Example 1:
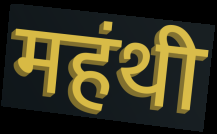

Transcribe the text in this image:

महंथी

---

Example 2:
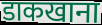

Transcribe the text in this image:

डाकखाना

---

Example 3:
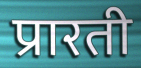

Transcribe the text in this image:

प्रारती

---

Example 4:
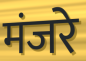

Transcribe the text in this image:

मंजरे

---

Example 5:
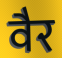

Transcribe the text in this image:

वैर